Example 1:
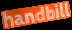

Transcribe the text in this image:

handbill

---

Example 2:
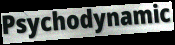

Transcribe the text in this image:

Psychodynamic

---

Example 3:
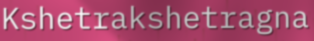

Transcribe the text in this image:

Kshetrakshetragna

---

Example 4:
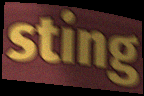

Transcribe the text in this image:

sting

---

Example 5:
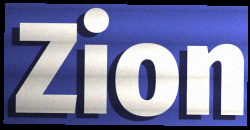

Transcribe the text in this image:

Zion